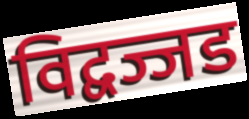
विद्वज्जड